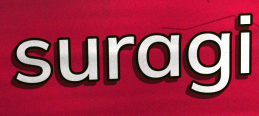
suragi